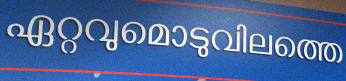
ഏറ്റവുമൊടുവിലത്തെ